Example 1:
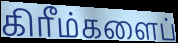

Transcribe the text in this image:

கிரீம்களைப்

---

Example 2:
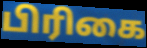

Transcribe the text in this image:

பிரிகை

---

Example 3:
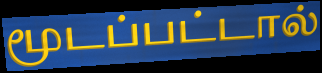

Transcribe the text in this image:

மூடப்பட்டால்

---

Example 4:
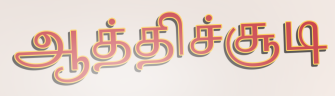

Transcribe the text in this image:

ஆத்திச்சூடி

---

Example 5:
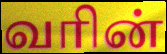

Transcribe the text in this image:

வரின்